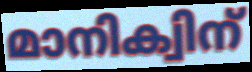
മാനിക്വിന്